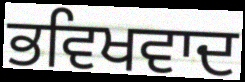
ਭਵਿਖਵਾਦ